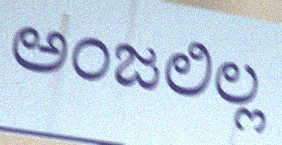
ಅಂಜಲಿಲ್ಲ